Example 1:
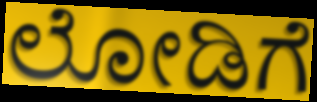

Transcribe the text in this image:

ಲೋಡಿಗೆ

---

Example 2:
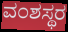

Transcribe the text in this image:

ವಂಶಸ್ಥರ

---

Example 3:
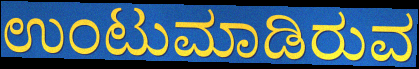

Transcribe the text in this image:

ಉಂಟುಮಾಡಿರುವ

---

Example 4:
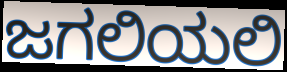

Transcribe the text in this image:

ಜಗಲಿಯಲಿ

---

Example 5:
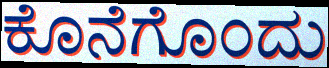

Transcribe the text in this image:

ಕೊನೆಗೊಂದು